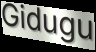
Gidugu